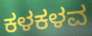
ಕಳಕಳವ